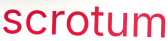
scrotum